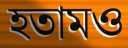
হতামও